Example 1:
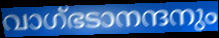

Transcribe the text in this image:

വാഗ്ഭടാനന്ദനും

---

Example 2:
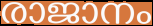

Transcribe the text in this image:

രാജാനം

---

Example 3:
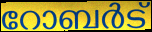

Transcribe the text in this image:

റോബർട്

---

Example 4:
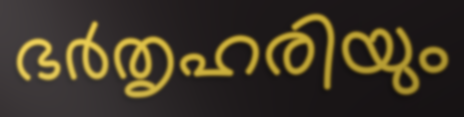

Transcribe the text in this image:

ഭർതൃഹരിയും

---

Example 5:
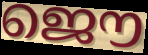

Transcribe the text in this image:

ജൌ